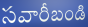
సవారీబండి